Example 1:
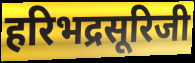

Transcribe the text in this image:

हरिभद्रसूरिजी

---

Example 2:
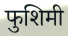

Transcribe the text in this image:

फुशिमी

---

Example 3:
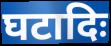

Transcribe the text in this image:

घटादिः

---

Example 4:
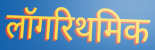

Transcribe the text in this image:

लॉगरिथमिक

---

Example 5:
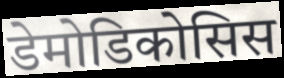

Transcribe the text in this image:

डेमोडिकोसिस